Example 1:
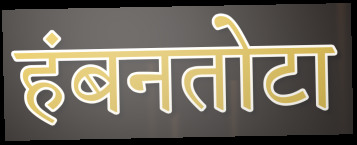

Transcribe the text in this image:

हंबनतोटा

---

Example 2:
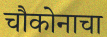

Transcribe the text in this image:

चौकोनाचा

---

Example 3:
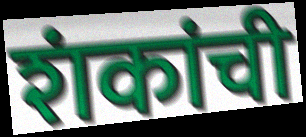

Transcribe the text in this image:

शंकांची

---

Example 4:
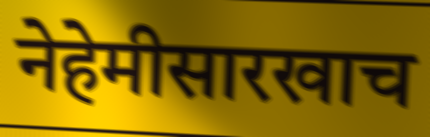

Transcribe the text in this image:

नेहेमीसारखाच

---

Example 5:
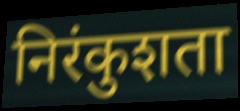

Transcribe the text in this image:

निरंकुशता